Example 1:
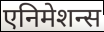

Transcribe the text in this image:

एनिमेशन्स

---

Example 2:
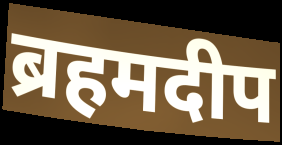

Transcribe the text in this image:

ब्रहमदीप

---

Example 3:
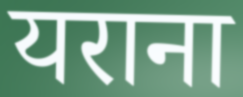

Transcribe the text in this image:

यराना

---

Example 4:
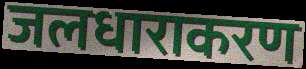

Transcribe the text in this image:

जलधाराकरण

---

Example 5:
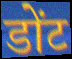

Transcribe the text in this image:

डोंट